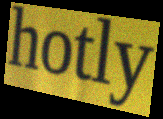
hotly